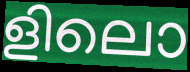
ളിലൊ